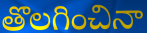
తొలగించినా